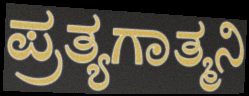
ಪ್ರತ್ಯಗಾತ್ಮನಿ